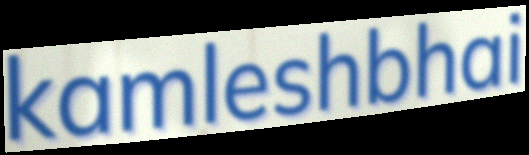
kamleshbhai